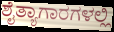
ಶೈತ್ಯಾಗಾರಗಳಲ್ಲಿ